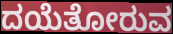
ದಯೆತೋರುವ